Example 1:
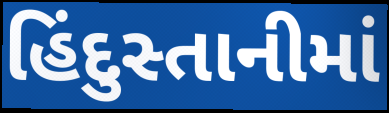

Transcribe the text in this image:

હિંદુસ્તાનીમાં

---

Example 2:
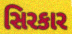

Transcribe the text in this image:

સિરકાર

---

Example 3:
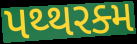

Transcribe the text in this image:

પથ્થરક્મ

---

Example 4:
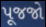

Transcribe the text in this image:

પૂજજો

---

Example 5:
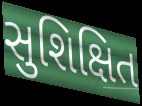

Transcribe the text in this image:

સુશિક્ષિત